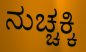
ನುಚ್ಚಕ್ಕಿ